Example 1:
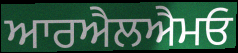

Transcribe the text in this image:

ਆਰਐਲਐਮਓ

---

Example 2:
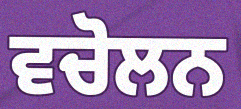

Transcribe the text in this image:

ਵਚੋਲਨ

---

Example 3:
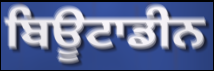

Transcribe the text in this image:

ਬਿਊਟਾਡੀਨ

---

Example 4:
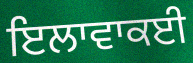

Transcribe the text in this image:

ਇਲਾਵਾਕਈ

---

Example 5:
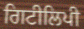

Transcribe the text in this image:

ਗਿਟੀਲਿਪੀ